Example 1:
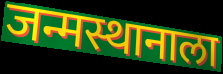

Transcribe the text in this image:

जन्मस्थानाला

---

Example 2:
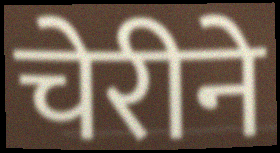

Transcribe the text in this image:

चेरीने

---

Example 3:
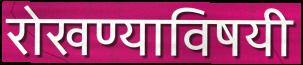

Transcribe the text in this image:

रोखण्याविषयी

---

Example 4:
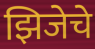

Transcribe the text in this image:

झिजेचे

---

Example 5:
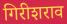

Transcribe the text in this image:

गिरीशराव